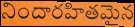
నిందారహితమైన